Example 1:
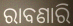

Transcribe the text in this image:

ରାବଣାରି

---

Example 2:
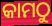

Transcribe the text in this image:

କାମଠୁ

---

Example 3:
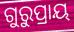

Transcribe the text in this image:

ଗୁରୁପ୍ରାୟ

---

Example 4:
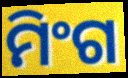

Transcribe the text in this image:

ମିଂଗ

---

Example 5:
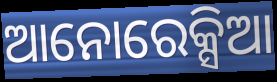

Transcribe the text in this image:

ଆନୋରେକ୍ସିଆ